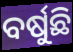
ବର୍ଷୁଛି